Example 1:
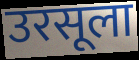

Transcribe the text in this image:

उरसूला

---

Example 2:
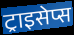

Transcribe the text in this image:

ट्राइसेप्स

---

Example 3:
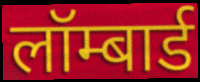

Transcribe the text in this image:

लॉम्बार्ड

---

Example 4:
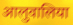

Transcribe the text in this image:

आलुवालिया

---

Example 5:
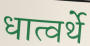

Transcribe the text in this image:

धात्वर्थे